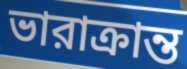
ভারাক্রান্ত